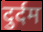
दुर्दम